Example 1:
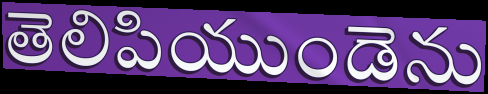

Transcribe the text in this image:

తెలిపియుండెను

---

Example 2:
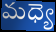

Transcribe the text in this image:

మధ్యె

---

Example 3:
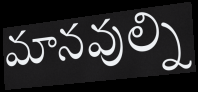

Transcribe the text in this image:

మానవుల్ని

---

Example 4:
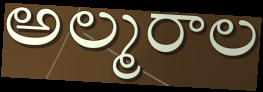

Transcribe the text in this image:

అల్మరాల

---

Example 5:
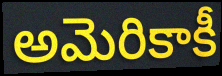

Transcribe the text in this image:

అమెరికాకీ